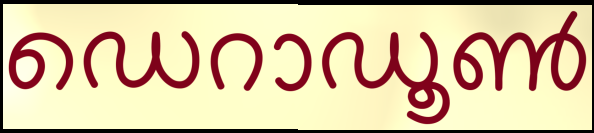
ഡെറാഡൂൺ